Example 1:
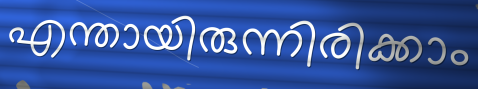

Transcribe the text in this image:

എന്തായിരുന്നിരിക്കാം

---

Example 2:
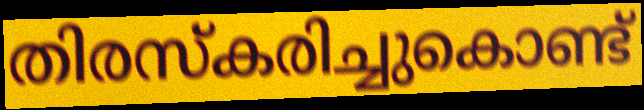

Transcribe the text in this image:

തിരസ്കരിച്ചുകൊണ്ട്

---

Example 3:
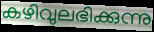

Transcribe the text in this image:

കഴിവുലഭിക്കുന്നു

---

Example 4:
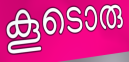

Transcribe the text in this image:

കൂടൊരു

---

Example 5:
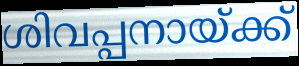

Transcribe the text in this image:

ശിവപ്പനായ്ക്ക്